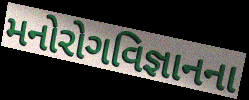
મનોરોગવિજ્ઞાનના